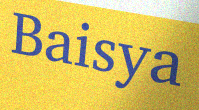
Baisya